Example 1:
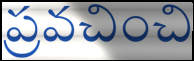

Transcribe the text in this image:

ప్రవచించి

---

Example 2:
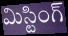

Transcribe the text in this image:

మిస్టింగ్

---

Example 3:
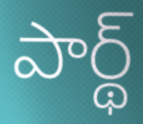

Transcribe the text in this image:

పార్థ్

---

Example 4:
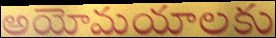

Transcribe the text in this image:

అయోమయాలకు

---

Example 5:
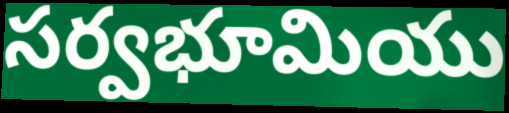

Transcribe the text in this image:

సర్వభూమియు